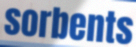
sorbents